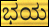
ಭಯ